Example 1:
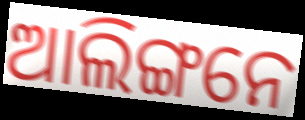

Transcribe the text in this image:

ଆଲିଙ୍ଗନେ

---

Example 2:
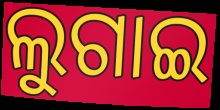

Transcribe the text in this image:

ଲୁଗାଇ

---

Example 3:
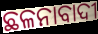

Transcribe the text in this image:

ଛଳନାବାଦୀ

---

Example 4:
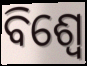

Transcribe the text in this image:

ବିଶ୍ଵେ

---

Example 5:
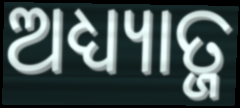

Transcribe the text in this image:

ଅଧ୍ୟ୍ୟାତ୍ଜ